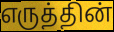
எருத்தின்